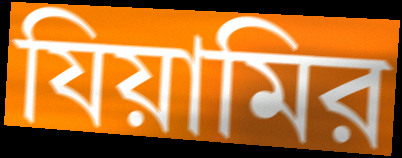
যিয়ামির